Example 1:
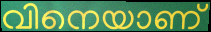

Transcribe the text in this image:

വിനെയാണ്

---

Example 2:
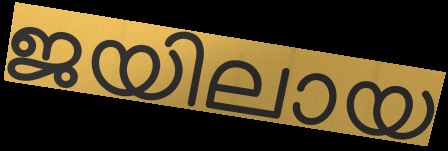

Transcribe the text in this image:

ജയിലായ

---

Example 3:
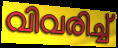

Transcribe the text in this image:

വിവരിച്ച്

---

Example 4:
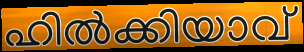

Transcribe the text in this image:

ഹിൽക്കിയാവ്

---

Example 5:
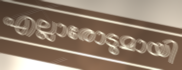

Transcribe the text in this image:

എല്ലാരോടുമായി